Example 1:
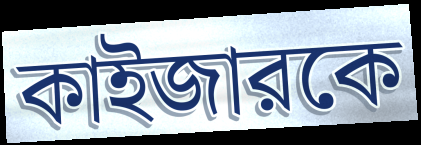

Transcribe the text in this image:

কাইজারকে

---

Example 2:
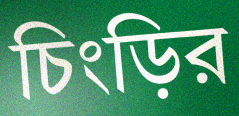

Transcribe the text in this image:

চিংড়ির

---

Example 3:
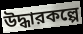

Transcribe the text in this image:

উদ্ধারকল্পে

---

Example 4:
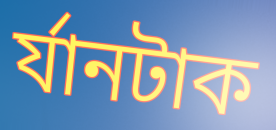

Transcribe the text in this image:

র্যানটাক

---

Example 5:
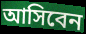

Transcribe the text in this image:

আসিবেন